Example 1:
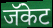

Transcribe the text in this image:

जॅकेट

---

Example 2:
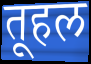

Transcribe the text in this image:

तूहल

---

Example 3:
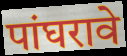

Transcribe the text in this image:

पांघरावे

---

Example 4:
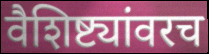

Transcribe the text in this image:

वैशिष्ट्यांवरच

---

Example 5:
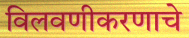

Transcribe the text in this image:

विलवणीकरणाचे